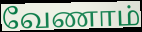
வேணாம்